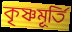
কৃষ্ণমূর্তি